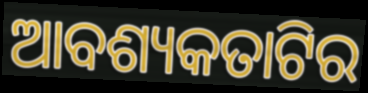
ଆବଶ୍ୟକତାଟିର